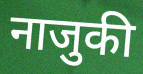
नाजुकी